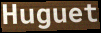
Huguet